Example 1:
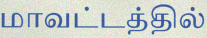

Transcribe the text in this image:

மாவட்டத்தில்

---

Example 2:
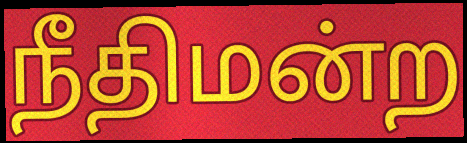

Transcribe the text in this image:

நீதிமன்ற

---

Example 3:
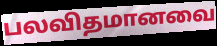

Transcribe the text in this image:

பலவிதமானவை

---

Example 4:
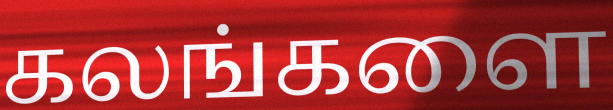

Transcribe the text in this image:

கலங்களை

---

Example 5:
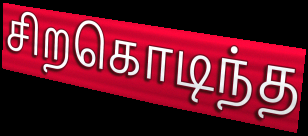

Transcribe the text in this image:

சிறகொடிந்த